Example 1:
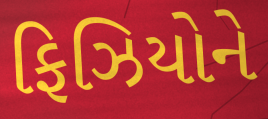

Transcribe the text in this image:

ફિઝિયોને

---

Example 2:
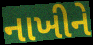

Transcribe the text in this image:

નાખીને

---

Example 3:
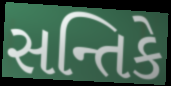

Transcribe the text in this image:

સન્તિકે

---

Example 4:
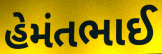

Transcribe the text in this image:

હેમંતભાઈ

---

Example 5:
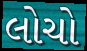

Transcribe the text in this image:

લોચો